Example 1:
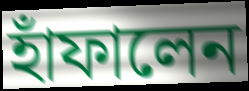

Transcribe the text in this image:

হাঁফালেন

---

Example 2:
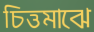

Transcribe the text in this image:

চিত্তমাঝে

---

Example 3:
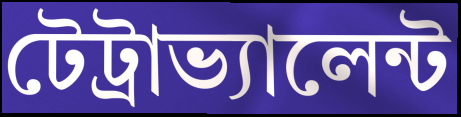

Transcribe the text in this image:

টেট্রাভ্যালেন্ট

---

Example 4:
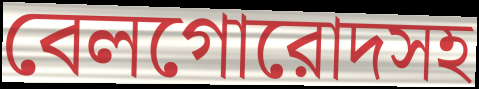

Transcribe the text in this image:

বেলগোরোদসহ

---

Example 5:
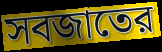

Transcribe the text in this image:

সবজাতের